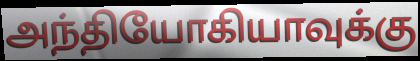
அந்தியோகியாவுக்கு